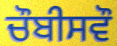
ਚੌਬੀਸਵੌ